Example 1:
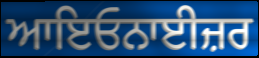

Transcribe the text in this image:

ਆਇਓਨਾਈਜ਼ਰ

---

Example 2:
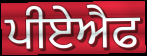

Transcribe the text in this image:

ਪੀਏਐਫ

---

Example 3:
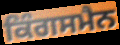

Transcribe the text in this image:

ਕਿੰਗਸਮੈਨ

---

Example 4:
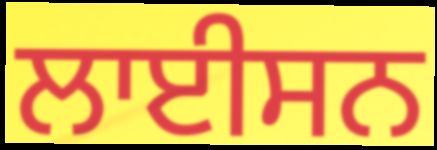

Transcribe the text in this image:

ਲਾਈਸਨ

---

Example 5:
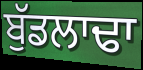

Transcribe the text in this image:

ਬੁੱਡਲਾਢਾ